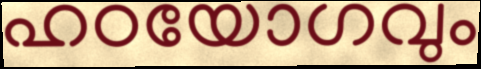
ഹഠയോഗവും